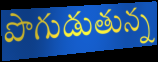
పొగుడుతున్న